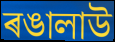
ৰঙালাউ